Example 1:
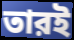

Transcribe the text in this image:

তারই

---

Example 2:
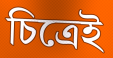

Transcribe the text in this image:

চিত্রেই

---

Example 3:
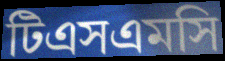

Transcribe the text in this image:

টিএসএমসি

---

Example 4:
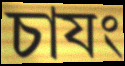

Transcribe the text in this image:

চাযং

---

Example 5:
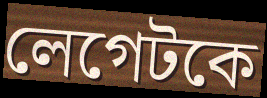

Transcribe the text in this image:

লেগেটকে